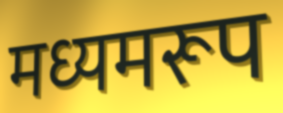
मध्यमरूप